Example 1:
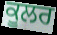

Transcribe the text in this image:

ਕੂਲਰ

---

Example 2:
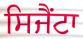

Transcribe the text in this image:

ਸਿਜੈਂਟਾ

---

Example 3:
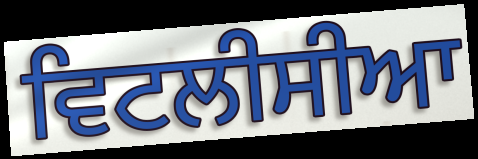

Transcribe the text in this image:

ਵਿਟਲੀਸੀਆ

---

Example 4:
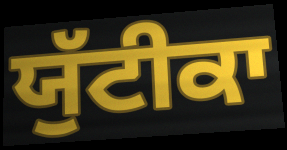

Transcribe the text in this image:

ਯੁੱਟੀਕਾ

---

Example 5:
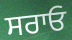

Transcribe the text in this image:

ਸਰਾਓ